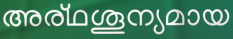
അര്ഥശൂന്യമായ